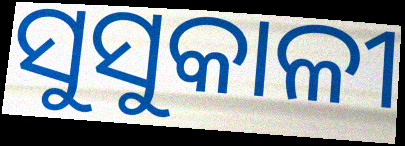
ସୁସୁକାଳୀ